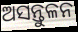
ଅସନ୍ତୁଳନ